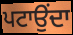
ਪਟਾਉਂਦਾ